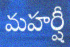
మహర్షీ